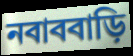
নবাববাড়ি